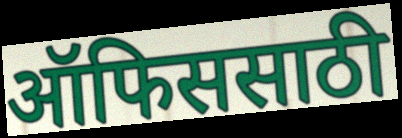
ऑफिससाठी